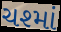
ચશ્માં